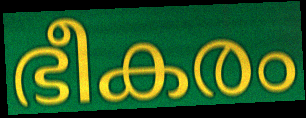
ഭീകരം